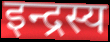
इन्द्रस्य